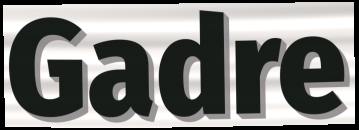
Gadre